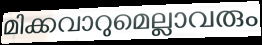
മിക്കവാറുമെല്ലാവരും